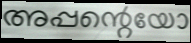
അപ്പന്റെയോ